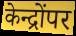
केन्द्रोंपर